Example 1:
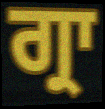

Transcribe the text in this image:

ਗ੍ਰਾ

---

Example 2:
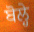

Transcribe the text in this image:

ਬੋਲ੍ਹੇ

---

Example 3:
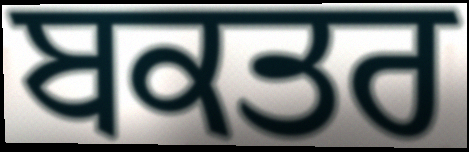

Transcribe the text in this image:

ਬਕਤਰ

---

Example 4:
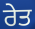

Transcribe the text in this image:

ਰੇਤ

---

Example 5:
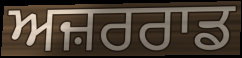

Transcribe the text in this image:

ਅਜ਼ਰਰਾਡ